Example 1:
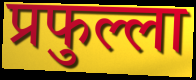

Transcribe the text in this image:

प्रफुल्ला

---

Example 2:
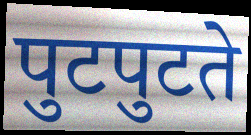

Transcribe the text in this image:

पुटपुटते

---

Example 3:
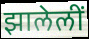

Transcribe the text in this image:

झालेलीं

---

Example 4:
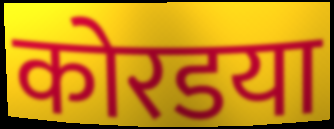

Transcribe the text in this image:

कोरडया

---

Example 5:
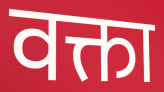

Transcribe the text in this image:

वक्ता